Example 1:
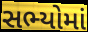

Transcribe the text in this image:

સભ્યોમાં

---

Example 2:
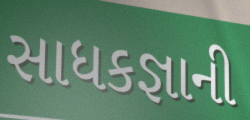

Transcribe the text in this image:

સાધકજ્ઞાની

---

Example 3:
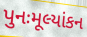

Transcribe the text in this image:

પુનઃમૂલ્યાંકન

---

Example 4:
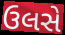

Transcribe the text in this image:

ઉલસે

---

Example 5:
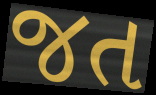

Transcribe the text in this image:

જત